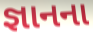
જ્ઞાનના